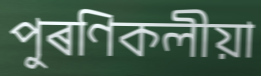
পুৰণিকলীয়া